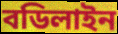
বডিলাইন